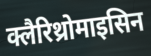
क्लैरिथ्रोमाइसिन